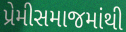
પ્રેમીસમાજમાંથી